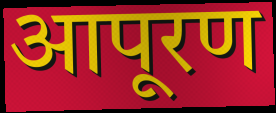
आपूरण